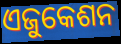
ଏଜୁକେଶନ